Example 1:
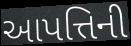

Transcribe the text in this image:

આપત્તિની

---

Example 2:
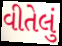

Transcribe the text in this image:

વીતેલું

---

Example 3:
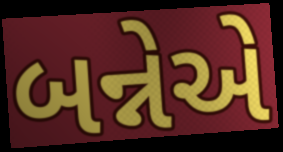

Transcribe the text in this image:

બન્નેએ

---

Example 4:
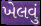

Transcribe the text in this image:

ખેલવું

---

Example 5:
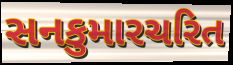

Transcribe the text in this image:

સનકુમારચરિત